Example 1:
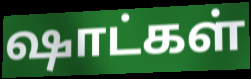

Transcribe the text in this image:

ஷாட்கள்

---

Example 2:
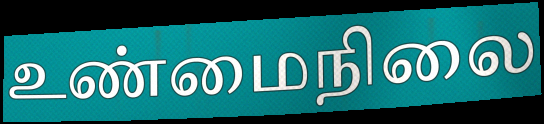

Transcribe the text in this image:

உண்மைநிலை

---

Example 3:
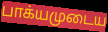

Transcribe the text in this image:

பாக்யமுடைய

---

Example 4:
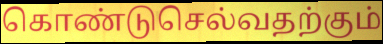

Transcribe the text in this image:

கொண்டுசெல்வதற்கும்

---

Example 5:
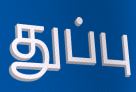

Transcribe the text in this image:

துப்பு